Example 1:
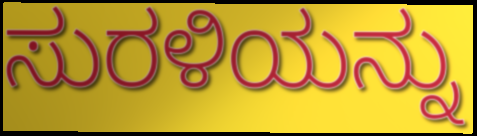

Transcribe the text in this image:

ಸುರಳಿಯನ್ನು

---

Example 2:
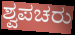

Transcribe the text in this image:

ಶ್ವಪಚರು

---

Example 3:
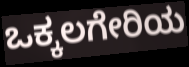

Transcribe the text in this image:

ಒಕ್ಕಲಗೇರಿಯ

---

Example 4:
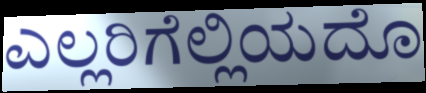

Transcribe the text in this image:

ಎಲ್ಲರಿಗೆಲ್ಲಿಯದೊ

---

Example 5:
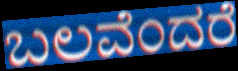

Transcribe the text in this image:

ಬಲವೆಂದರೆ